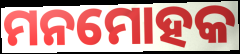
ମନମୋହକ